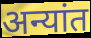
अन्यांत